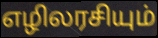
எழிலரசியும்